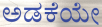
ಅಡಕೆಯೇ